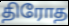
திரோத